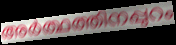
അർത്ഥത്തിനപ്പുറം